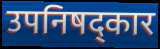
उपनिषद्कार